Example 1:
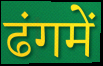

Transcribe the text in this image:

ढंगमें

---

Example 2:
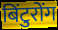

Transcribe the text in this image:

बिंटुरोंग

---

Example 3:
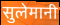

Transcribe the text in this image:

सुलेमानी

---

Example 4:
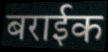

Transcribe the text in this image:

बराईक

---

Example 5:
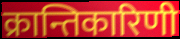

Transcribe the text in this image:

क्रान्तिकारिणी